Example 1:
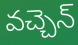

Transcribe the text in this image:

వచ్చెన్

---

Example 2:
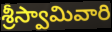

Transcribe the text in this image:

శ్రీస్వామివారి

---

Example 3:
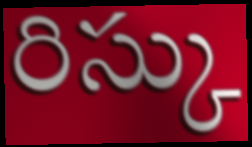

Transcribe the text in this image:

రిస్కు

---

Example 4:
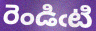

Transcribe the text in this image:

రెండిఁటి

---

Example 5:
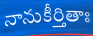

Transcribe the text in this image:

నానుకీర్తితాః